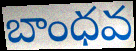
బాంధవ